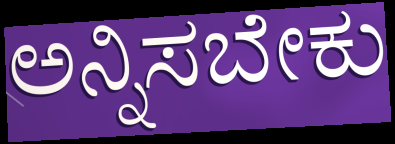
ಅನ್ನಿಸಬೇಕು